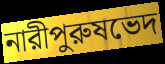
নারীপুরুষভেদ